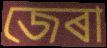
জেৰা